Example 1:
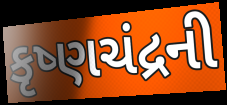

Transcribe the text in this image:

કૃષ્ણચંદ્રની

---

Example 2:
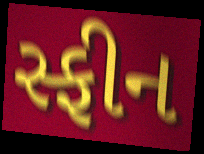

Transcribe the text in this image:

સ્ફીન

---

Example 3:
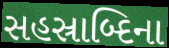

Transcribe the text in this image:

સહસ્રાબ્દિના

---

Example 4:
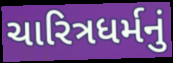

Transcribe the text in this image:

ચારિત્રધર્મનું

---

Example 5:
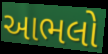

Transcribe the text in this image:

આભલો